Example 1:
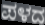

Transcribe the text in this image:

ಪಳದ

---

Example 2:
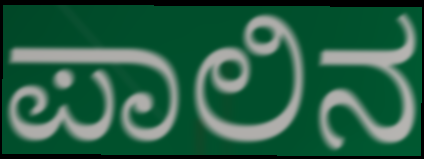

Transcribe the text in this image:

ಪಾಲಿನ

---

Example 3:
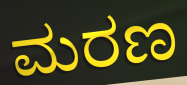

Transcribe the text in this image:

ಮರಣ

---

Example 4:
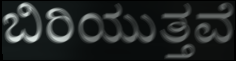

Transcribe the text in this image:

ಬಿರಿಯುತ್ತವೆ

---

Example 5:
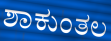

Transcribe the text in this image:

ಶಾಕುಂತಲ